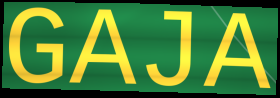
GAJA